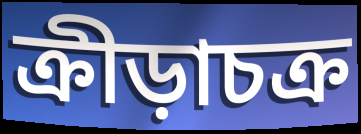
ক্রীড়াচক্র